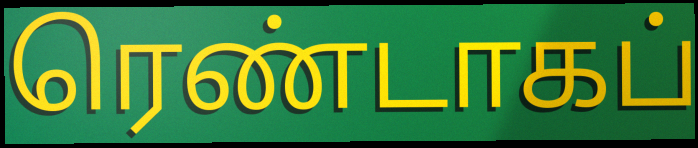
ரெண்டாகப்